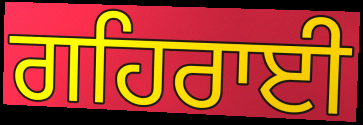
ਗਹਿਰਾਈ